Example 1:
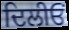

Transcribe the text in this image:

ਦਿਲੀਓਂ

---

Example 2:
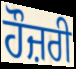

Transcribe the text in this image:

ਹੌਜ਼ਰੀ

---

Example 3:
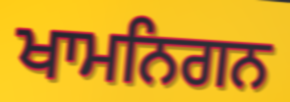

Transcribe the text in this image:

ਖਾਮਨਿਗਨ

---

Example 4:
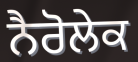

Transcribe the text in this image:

ਨੈਰੋਲੇਕ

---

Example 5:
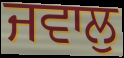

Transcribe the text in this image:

ਜਵਾਲੁ